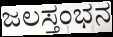
ಜಲಸ್ತಂಭನ